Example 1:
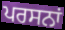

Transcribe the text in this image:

ਪਰਸਨਾਂ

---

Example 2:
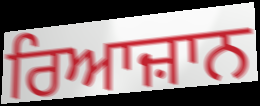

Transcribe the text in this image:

ਰਿਆਜ਼ਾਨ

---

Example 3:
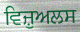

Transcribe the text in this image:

ਵਿਜ਼ੁਅਲਸ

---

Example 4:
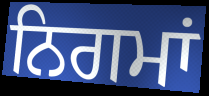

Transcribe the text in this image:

ਨਿਗਮਾਂ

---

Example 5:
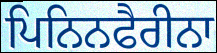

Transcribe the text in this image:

ਪਿਨਿਨਫੈਰੀਨਾ